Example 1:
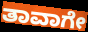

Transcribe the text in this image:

ತಾವಾಗೇ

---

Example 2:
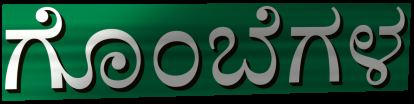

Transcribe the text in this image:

ಗೊಂಬೆಗಳ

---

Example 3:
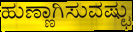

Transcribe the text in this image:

ಹುಣ್ಣಾಗಿಸುವಷ್ಟು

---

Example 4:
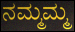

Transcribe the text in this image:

ನಮ್ಮಮ್ಮ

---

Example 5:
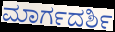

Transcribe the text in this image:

ಮಾರ್ಗದರ್ಶಿ